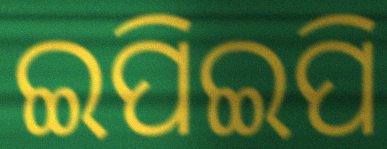
ଇପିଇପି